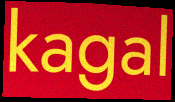
kagal